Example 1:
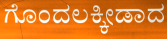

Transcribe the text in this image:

ಗೊಂದಲಕ್ಕೀಡಾದ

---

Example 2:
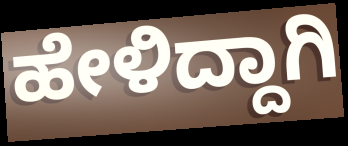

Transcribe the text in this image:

ಹೇಳಿದ್ದಾಗಿ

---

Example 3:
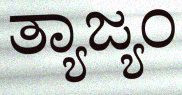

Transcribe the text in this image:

ತ್ಯಾಜ್ಯಂ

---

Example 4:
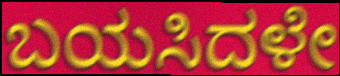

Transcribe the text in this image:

ಬಯಸಿದಳೇ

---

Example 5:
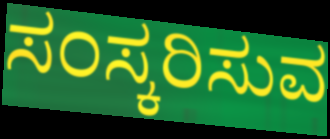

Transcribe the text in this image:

ಸಂಸ್ಕರಿಸುವ